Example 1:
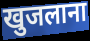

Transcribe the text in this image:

खुजलाना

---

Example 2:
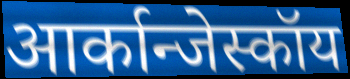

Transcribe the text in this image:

आर्कान्जेस्कॉय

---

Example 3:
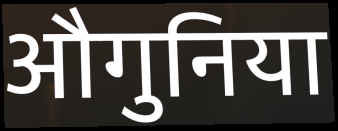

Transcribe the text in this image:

औगुनिया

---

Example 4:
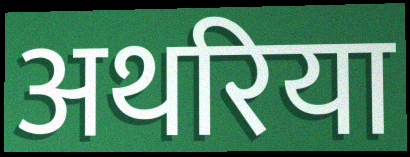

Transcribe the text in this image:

अथरिया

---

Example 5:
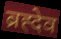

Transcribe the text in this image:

ब्रह्देव